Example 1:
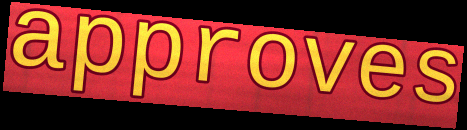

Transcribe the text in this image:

approves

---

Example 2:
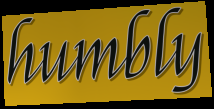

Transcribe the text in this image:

humbly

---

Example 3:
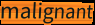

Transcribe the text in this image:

malignant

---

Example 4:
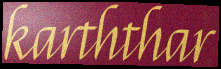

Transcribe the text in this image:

karththar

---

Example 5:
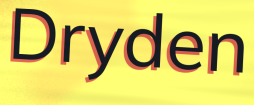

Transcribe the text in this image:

Dryden